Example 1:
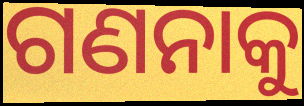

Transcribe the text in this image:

ଗଣନାକୁ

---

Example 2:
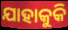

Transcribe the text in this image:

ଯାହାକୁକି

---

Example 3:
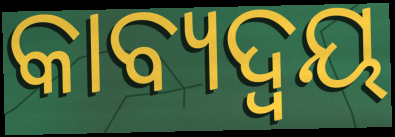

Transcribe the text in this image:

କାବ୍ୟଦ୍ୱୟ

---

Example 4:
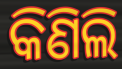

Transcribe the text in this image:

କିଣିଲି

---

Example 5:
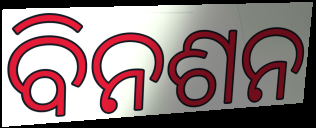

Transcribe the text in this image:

ବିନଶନ